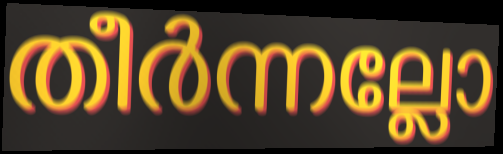
തീർന്നല്ലോ